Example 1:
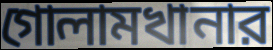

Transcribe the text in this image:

গোলামখানার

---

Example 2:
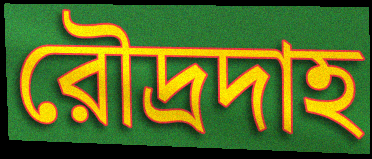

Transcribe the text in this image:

রৌদ্রদাহ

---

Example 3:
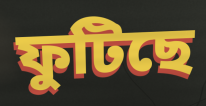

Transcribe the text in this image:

ফুটিছে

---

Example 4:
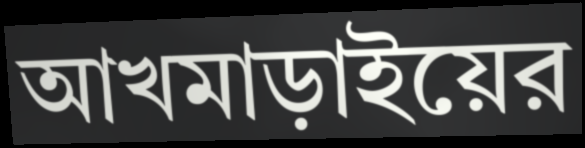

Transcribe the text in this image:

আখমাড়াইয়ের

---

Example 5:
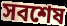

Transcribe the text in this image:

সবশেষ